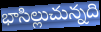
భాసిల్లుచున్నది